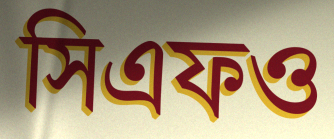
সিএফও